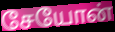
சேயோன்